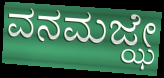
ವನಮಜ್ಝೇ